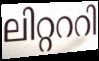
ലിറ്റററി